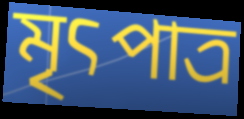
মৃৎপাত্র